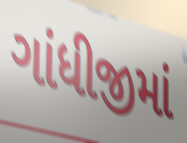
ગાંધીજીમાં